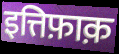
इत्तिफ़ाक़